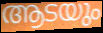
ആടയും